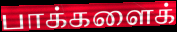
பாக்களைக்